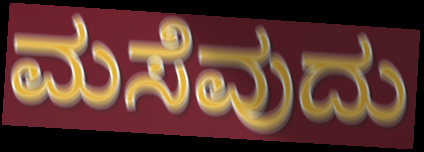
ಮಸೆವುದು